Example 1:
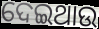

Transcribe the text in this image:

ଦେଇଥାଉ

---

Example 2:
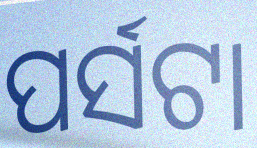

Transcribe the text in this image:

ପର୍ସଟା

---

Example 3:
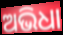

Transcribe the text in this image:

ଅଭିଧା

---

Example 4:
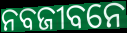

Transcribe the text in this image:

ନବଜୀବନେ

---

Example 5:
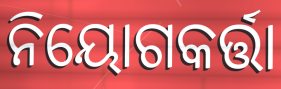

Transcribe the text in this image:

ନିୟୋଗକର୍ତ୍ତା